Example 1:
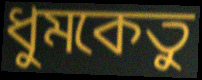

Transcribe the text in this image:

ধুমকেতু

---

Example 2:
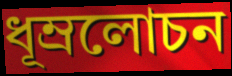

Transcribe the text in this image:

ধূম্রলোচন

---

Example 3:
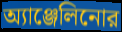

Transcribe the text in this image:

অ্যাঞ্জেলিনোর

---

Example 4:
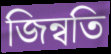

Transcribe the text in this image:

জিন্বতি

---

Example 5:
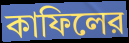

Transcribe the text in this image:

কাফিলের